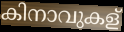
കിനാവുകള്